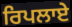
ਰਿਪਲਾਏ